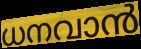
ധനവാൻ